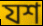
যশ